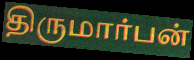
திருமார்பன்